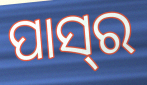
ପାସ୍‍ର